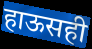
हाऊसही